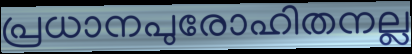
പ്രധാനപുരോഹിതനല്ല